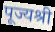
पूज्यश्री